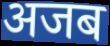
अजब